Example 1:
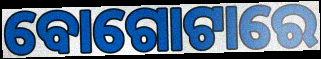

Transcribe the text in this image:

ବୋଗୋଟାରେ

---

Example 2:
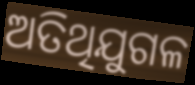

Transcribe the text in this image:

ଅତିଥିଯୁଗଳ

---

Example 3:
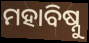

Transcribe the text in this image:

ମହାବିଷ୍ନୁ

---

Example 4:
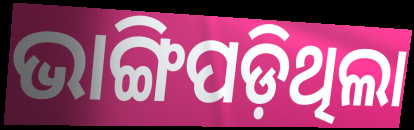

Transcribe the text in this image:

ଭାଙ୍ଗିପଡ଼ିଥିଲା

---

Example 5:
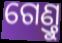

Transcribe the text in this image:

ଗେଣ୍ତୁ